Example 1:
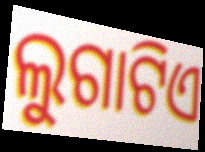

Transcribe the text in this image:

ଲୁଗାଟିଏ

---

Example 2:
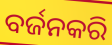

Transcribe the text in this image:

ବର୍ଜନକରି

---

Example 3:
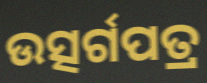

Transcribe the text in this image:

ଉତ୍ସର୍ଗପତ୍ର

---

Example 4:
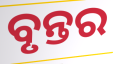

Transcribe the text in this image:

ବୃନ୍ତର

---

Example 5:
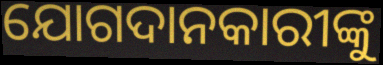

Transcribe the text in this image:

ଯୋଗଦାନକାରୀଙ୍କୁ